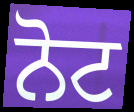
ਨੋਟ